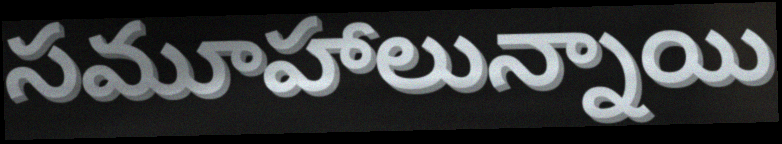
సమూహాలున్నాయి